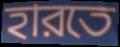
হারতে